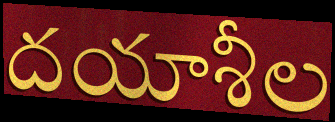
దయాశీల